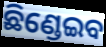
ଛିଣ୍ଡେଇବ